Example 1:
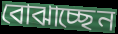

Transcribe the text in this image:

বোঝাচ্ছেন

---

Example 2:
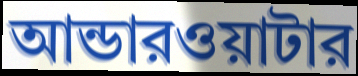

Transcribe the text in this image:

আন্ডারওয়াটার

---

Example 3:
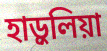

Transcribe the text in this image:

হাড়ুলিয়া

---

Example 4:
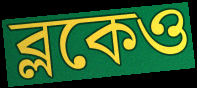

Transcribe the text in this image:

ব্লকেও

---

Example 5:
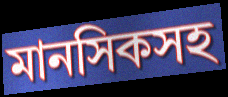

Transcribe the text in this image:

মানসিকসহ